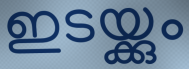
ഇടയ്ക്കും